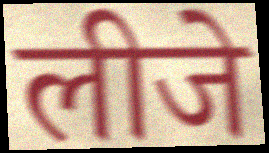
लीजे